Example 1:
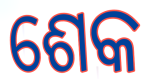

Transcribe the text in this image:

ଶେକ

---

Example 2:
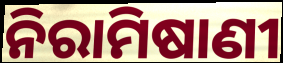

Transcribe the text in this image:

ନିରାମିଷାଣୀ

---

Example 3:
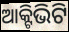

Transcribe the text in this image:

ଆକ୍ଟିଭିଟି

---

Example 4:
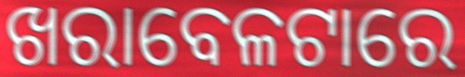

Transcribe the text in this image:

ଖରାବେଳଟାରେ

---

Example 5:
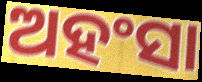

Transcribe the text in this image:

ଅହଂସା